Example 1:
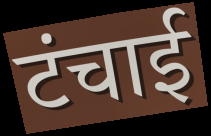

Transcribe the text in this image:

टंचाई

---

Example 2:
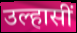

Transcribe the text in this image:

उल्हासीं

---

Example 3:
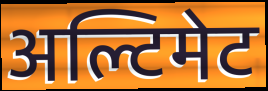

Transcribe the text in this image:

अल्टिमेट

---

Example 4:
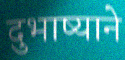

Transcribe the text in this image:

दुभाष्याने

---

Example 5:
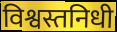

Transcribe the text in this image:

विश्वस्तनिधी